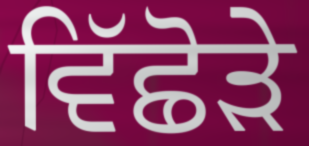
ਵਿੱਛੋੜੇ